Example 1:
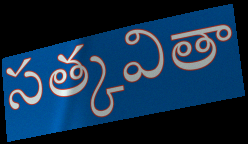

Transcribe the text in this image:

సత్కవితా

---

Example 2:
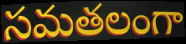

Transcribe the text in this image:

సమతలంగా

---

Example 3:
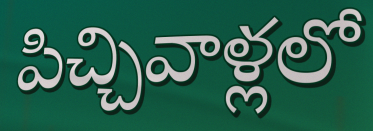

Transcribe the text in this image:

పిచ్చివాళ్లలో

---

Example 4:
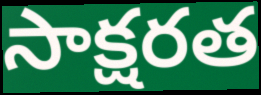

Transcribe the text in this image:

సాక్షరత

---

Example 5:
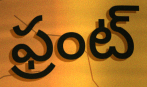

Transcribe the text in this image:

ఫ్రంట్